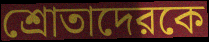
শ্রোতাদেরকে